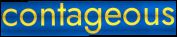
contageous